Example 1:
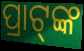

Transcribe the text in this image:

ପ୍ରାଟ୍‍ଙ୍କ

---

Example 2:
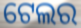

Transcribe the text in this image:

ଟେଲର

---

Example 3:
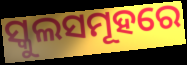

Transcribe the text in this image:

ସ୍କୁଲସମୂହରେ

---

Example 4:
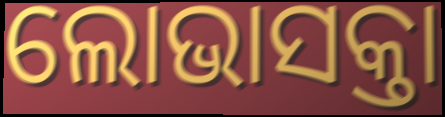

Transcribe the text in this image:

ଲୋଭାସକ୍ତା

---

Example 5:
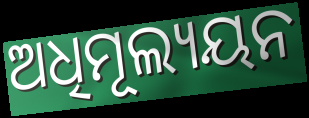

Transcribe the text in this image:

ଅଧିମୂଲ୍ୟୟନ